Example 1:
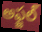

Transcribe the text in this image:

అఫ్జల్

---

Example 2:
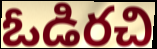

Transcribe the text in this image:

ఓడిరచి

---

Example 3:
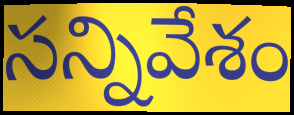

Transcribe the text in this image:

సన్నివేశం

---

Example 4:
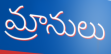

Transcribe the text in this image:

మ్రానులు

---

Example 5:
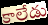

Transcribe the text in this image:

కాలేడు